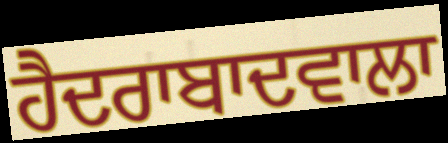
ਹੈਦਰਾਬਾਦਵਾਲਾ